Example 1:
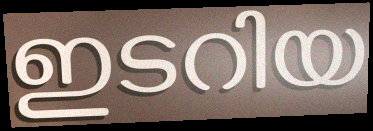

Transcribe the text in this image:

ഇടറിയ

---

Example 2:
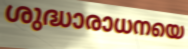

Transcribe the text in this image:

ശുദ്ധാരാധനയെ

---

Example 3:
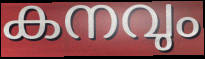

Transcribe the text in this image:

കനവും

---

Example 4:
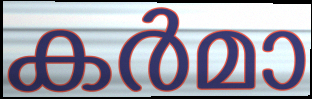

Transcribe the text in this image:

കർമാ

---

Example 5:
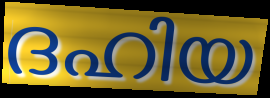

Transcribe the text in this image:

ദഹിയ